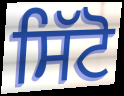
ਸਿੱਟੋ